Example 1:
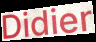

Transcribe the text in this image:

Didier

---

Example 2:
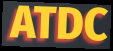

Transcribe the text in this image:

ATDC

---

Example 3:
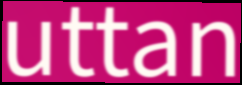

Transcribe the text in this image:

uttan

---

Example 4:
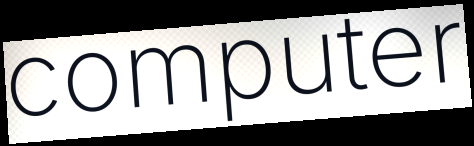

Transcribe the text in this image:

computer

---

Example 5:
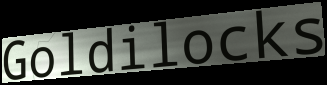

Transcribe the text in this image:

Goldilocks